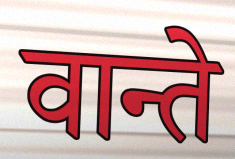
वान्ते